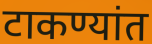
टाकण्यांत